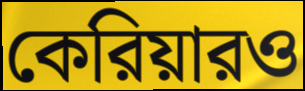
কেরিয়ারও